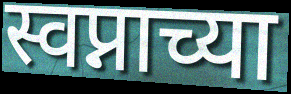
स्वप्नाच्या